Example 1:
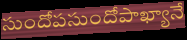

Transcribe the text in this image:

సుందోపసుందోపాఖ్యానే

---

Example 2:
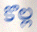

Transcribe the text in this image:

కొల్ల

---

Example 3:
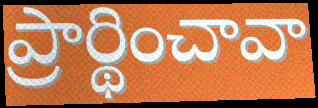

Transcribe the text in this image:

ప్రార్థించావా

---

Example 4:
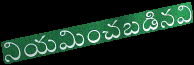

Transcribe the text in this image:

నియమించబడినవి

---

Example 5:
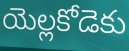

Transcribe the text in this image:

యెల్లకోడెకు